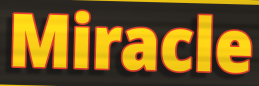
Miracle